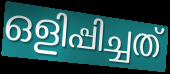
ഒളിപ്പിച്ചത്